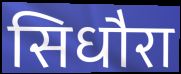
सिधौरा